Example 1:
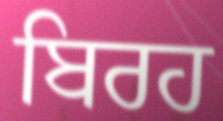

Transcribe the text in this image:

ਬਿਰਹ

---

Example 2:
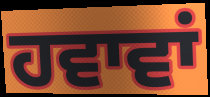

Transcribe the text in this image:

ਹਵਾਵਾਂ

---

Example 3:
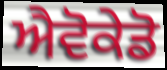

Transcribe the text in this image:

ਐਵੋਕੇਡੋ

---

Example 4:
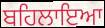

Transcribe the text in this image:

ਬਹਿਲਾਇਆ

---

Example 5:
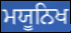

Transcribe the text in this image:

ਮਯੂਨਿਖ